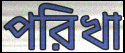
পরিখা